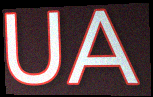
UA